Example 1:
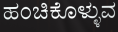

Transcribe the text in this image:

ಹಂಚಿಕೊಳ್ಳುವ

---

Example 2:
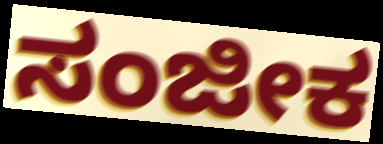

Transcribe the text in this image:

ಸಂಜೀಕ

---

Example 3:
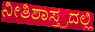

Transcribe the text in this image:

ನೀತಿಶಾಸ್ತ್ರದಲ್ಲಿ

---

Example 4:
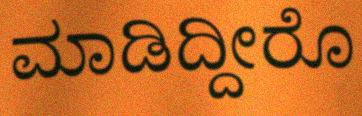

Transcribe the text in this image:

ಮಾಡಿದ್ದೀರೊ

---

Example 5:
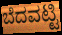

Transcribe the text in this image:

ಬೆದವಟ್ಟಿ